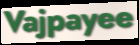
Vajpayee